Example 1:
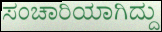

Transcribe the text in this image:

ಸಂಚಾರಿಯಾಗಿದ್ದು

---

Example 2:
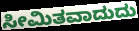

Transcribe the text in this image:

ಸೀಮಿತವಾದುದು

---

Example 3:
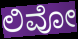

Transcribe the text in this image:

ಲಿವೋ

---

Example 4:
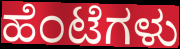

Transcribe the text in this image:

ಹೆಂಟೆಗಳು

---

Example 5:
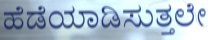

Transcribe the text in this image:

ಹೆಡೆಯಾಡಿಸುತ್ತಲೇ